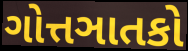
ગોત્તઞાતકો